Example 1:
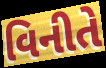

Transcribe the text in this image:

વિનીતે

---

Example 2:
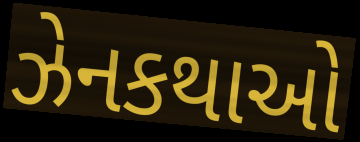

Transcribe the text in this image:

ઝેનકથાઓ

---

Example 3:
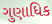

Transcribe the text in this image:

ગુણાધિક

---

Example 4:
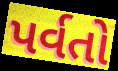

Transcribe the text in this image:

પર્વતો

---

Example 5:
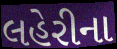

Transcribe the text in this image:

લહેરીના